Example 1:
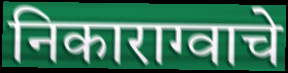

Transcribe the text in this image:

निकाराग्वाचे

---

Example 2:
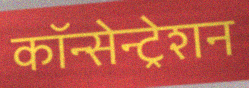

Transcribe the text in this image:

कॉन्सेन्ट्रेशन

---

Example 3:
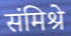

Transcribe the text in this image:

संमिश्रे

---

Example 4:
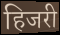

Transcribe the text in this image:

हिजरी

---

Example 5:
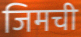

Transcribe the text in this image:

जिमची